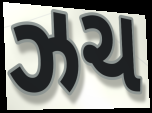
ઝચ